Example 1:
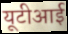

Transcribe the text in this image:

यूटीआई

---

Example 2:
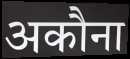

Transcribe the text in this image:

अकौना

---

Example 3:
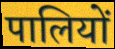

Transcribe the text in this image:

पालियों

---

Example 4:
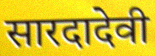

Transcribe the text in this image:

सारदादेवी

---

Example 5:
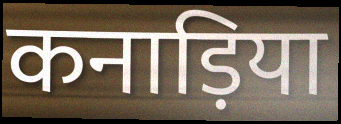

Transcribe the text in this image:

कनाड़िया